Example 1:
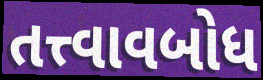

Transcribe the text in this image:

તત્ત્વાવબોધ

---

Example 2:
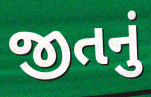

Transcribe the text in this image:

જીતનું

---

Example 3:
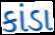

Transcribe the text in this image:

કાંડા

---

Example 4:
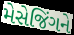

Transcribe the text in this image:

મેસેજિંગને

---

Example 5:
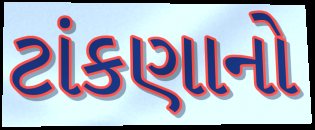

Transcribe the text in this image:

ટાંકણાનો